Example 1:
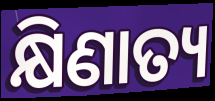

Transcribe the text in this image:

କ୍ଷିଣାତ୍ୟ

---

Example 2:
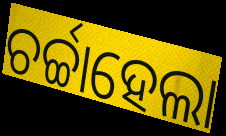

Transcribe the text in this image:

ଚର୍ଚ୍ଚାହେଲା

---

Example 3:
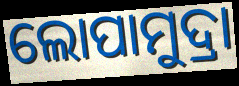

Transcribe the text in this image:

ଲୋପାମୁଦ୍ରା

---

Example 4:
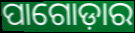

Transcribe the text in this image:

ପାଗୋଡ଼ାର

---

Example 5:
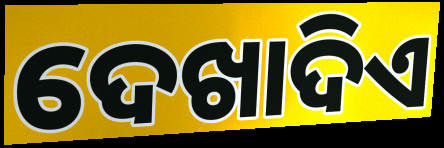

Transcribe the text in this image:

ଦେଖାଦିଏ